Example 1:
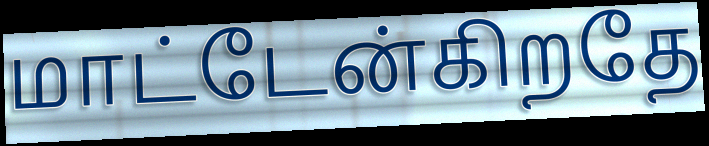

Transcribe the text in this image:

மாட்டேன்கிறதே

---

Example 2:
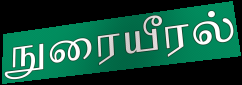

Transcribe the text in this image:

நுரையீரல்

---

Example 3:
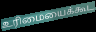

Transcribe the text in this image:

உரிமையைக்கூட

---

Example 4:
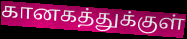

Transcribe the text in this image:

கானகத்துக்குள்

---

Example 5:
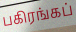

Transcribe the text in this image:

பகிரங்கப்